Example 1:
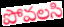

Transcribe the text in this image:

పోవలసి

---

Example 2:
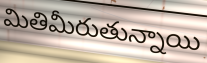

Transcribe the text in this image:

మితిమీరుతున్నాయి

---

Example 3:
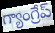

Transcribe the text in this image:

గ్యాంగ్రేప్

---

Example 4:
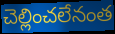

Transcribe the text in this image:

చెల్లించలేనంత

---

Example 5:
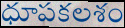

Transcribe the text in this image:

ధూపకలశం